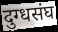
दुग्धसंघ